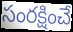
సంరక్షించే